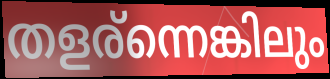
തളര്ന്നെങ്കിലും